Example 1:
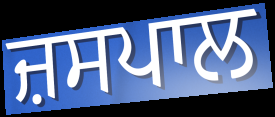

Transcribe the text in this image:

ਜ਼ਸਪਾਲ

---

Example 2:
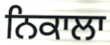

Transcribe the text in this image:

ਨਿਕਾਲਾ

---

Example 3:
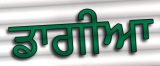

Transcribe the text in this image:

ਡਾਗੀਆ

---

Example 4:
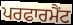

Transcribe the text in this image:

ਪਰਫਾਰਮੈਂਟ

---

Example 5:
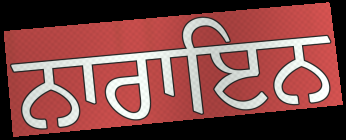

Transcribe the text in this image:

ਨਾਰਾਇਨ